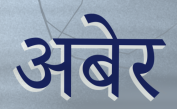
अबेर